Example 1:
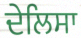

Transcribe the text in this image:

ਦੇਲਿਸਾ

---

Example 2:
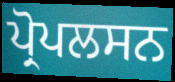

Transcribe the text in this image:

ਪ੍ਰੋਪਲਸਨ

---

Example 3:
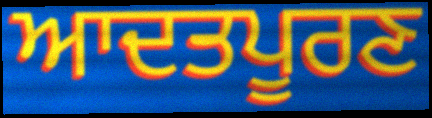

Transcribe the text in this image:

ਆਦਤਪੂਰਣ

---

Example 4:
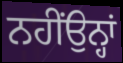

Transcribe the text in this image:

ਨਹੀਂਉਨ੍ਹਾਂ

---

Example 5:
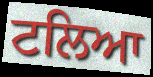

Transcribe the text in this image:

ਟਲਿਆ